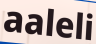
aaleli